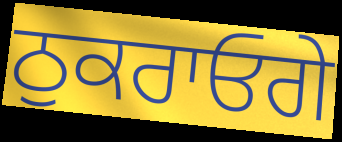
ਠੁਕਰਾਓਗੇ